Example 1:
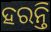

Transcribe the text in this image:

ହରନ୍ତି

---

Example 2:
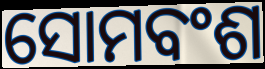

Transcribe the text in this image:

ସୋମବଂଶ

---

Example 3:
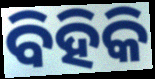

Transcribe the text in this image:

ବିହିକି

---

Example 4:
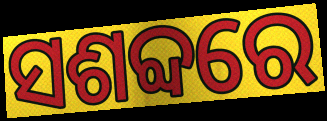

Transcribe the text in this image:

ସଶବ୍ଦରେ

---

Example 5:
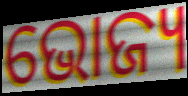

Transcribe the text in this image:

ଭୋଜ୍ୟ